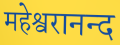
महेश्वरानन्द